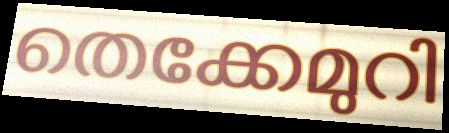
തെക്കേമുറി